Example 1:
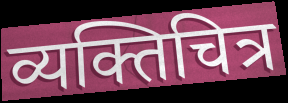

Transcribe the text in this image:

व्यक्तिचित्र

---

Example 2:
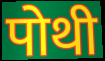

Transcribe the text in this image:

पोथी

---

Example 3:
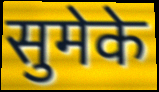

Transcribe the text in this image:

सुमेके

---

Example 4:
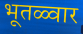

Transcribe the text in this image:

भूतळ्वार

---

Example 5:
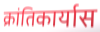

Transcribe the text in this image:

क्रांतिकार्यास